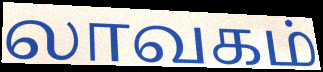
லாவகம்